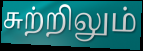
சுற்றிலும்